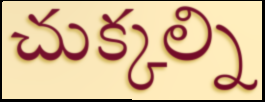
చుక్కల్ని